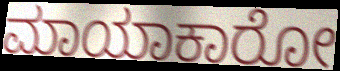
ಮಾಯಾಕಾರೋ